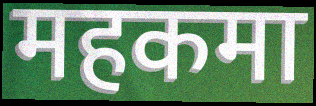
महकमा